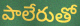
పాలేరుతో